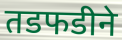
तडफडीने